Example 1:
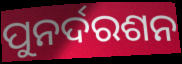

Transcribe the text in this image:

ପୁନର୍ଦରଶନ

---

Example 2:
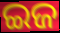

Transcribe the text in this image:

ଇଜ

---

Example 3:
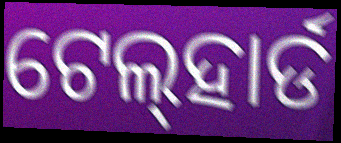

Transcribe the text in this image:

ଟେଲ୍‍ହାର୍ଡ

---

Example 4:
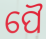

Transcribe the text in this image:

ପୈ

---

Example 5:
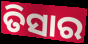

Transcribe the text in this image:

ତିସାର